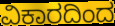
ವಿಕಾರದಿಂದ